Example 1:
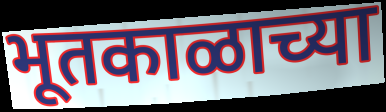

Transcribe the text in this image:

भूतकाळाच्या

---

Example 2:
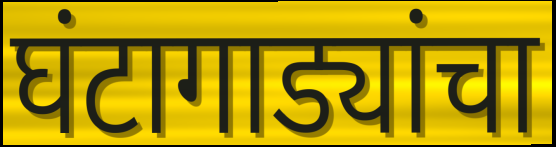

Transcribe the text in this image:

घंटागाड्यांचा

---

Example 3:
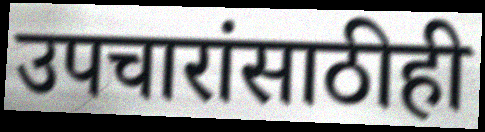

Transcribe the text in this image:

उपचारांसाठीही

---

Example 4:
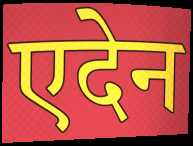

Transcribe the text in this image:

एदेन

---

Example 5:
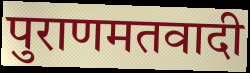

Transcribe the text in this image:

पुराणमतवादी